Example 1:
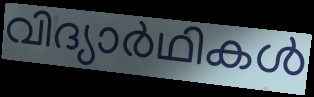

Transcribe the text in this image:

വിദ്യാർഥികൾ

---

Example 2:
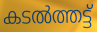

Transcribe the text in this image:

കടൽത്തട്ട്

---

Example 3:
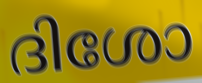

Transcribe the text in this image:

ദിശോ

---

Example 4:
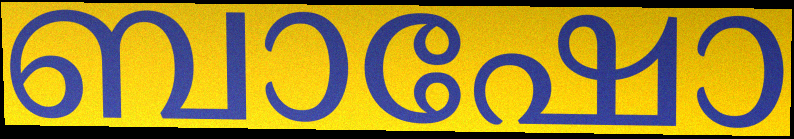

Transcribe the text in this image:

ബാഷോ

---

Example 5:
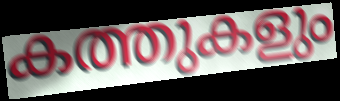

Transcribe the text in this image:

കത്തുകളും